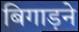
बिगाड़ने